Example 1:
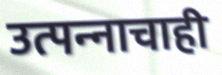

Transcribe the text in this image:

उत्पन्नाचाही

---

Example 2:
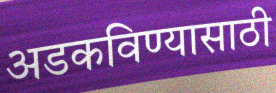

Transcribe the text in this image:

अडकविण्यासाठी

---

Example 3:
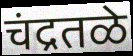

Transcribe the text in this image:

चंद्रतळे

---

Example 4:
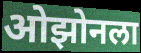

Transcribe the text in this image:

ओझोनला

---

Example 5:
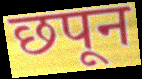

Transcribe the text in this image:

छपून